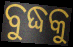
ବୁଦ୍ଧକୁ